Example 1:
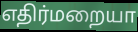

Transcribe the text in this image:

எதிர்மறையா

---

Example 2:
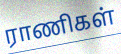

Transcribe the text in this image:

ராணிகள்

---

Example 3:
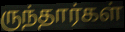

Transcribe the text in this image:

ருந்தார்கள்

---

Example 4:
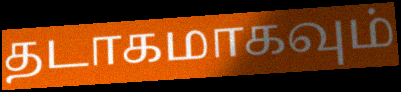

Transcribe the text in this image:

தடாகமாகவும்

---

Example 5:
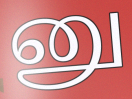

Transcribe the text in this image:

னு